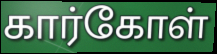
கார்கோள்